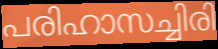
പരിഹാസച്ചിരി